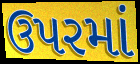
ઉપરમાં